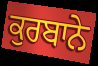
ਕੁਰਬਾਨੇ